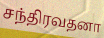
சந்திரவதனா